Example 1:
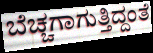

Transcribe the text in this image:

ಬೆಚ್ಚಗಾಗುತ್ತಿದ್ದಂತೆ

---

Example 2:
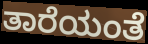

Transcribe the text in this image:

ತಾರೆಯಂತೆ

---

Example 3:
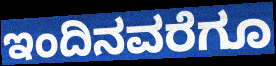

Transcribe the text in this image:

ಇಂದಿನವರೆಗೂ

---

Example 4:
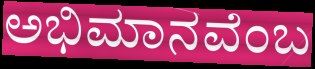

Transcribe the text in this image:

ಅಭಿಮಾನವೆಂಬ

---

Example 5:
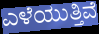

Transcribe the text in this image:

ಎಳೆಯುತ್ತಿವೆ